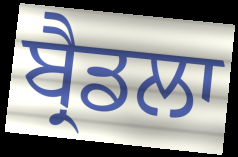
ਬ੍ਰੈਡਲਾ